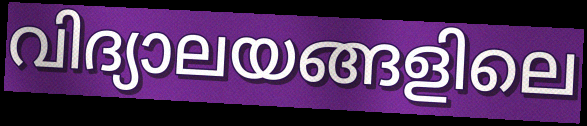
വിദ്യാലയങ്ങളിലെ